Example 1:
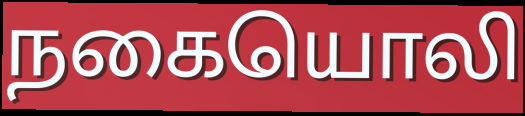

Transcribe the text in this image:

நகையொலி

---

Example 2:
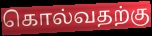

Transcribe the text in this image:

கொல்வதற்கு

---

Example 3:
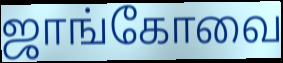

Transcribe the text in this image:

ஜாங்கோவை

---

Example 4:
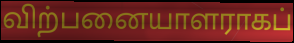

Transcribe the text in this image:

விற்பனையாளராகப்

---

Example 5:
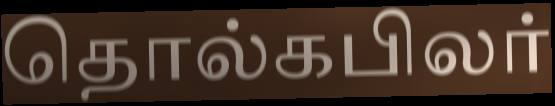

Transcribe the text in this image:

தொல்கபிலர்